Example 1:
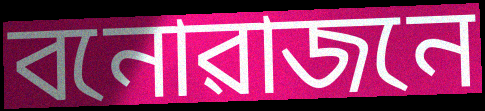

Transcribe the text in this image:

বনোৱাজনে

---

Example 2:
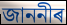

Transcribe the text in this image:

জাননীৰ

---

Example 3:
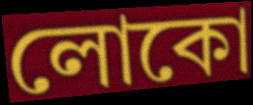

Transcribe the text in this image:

লোকো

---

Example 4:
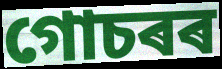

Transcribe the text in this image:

গোচৰৰ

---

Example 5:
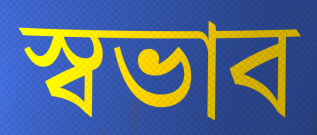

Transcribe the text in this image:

স্বভাব